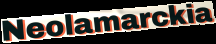
Neolamarckia